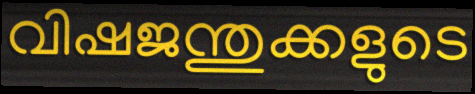
വിഷജന്തുക്കളുടെ